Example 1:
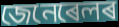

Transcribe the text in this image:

জেনেৰেলৰ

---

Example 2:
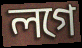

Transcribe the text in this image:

লগে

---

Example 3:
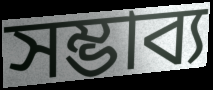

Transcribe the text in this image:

সম্ভাব্য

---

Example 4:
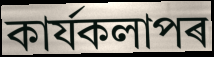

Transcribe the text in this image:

কাৰ্যকলাপৰ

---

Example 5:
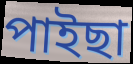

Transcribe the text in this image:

পাইছা